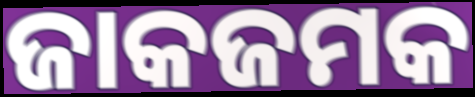
ଜାକଜମକ